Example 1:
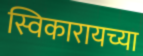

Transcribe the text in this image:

स्विकारायच्या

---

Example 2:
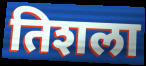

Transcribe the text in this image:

तिशला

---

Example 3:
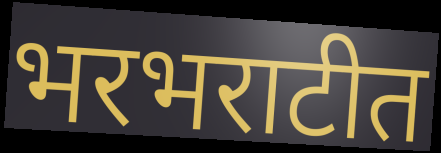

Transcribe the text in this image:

भरभराटीत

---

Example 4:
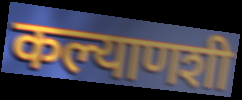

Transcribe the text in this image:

कल्याणशी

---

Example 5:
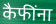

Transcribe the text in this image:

कैफींना